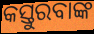
କସ୍ତୁରବାଙ୍କ